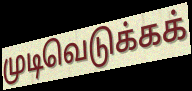
முடிவெடுக்கக்